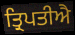
ਤ੍ਰਿਪਤੀਐ